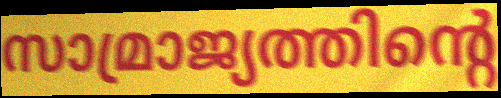
സാമ്രാജ്യത്തിന്റെ